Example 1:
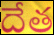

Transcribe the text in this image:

దేత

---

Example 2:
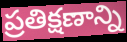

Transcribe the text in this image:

ప్రతిక్షణాన్ని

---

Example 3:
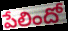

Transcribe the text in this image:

పేలిందో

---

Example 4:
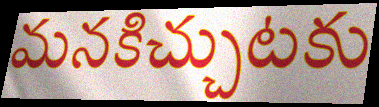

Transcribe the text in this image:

మనకిచ్చుటకు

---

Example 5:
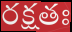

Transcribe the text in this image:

రక్షతః